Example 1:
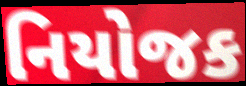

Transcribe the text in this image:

નિયોજક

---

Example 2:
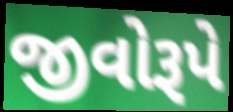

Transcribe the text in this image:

જીવોરૂપે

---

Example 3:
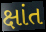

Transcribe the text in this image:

ક્ષાંત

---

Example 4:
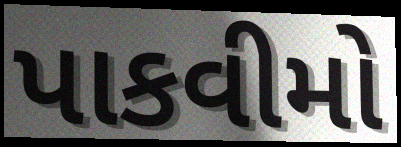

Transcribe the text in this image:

પાકવીમો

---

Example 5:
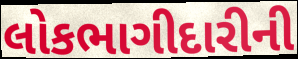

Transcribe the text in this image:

લોકભાગીદારીની